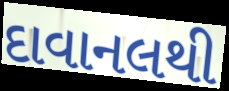
દાવાનલથી